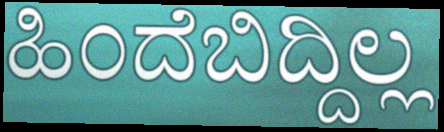
ಹಿಂದೆಬಿದ್ದಿಲ್ಲ